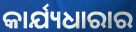
କାର୍ଯ୍ୟଧାରାର